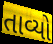
તાવ્યો